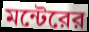
মন্টেরের